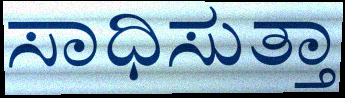
ಸಾಧಿಸುತ್ತಾ